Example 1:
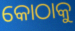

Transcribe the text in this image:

କୋଠାକୁ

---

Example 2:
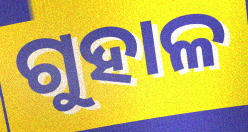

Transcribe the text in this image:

ଗୁହାଳ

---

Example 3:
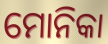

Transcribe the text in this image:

ମୋନିକା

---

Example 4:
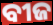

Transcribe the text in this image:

ବୀଜ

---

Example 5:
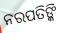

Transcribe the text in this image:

ନରପତିଙ୍କି